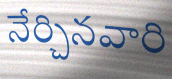
నేర్చినవారి